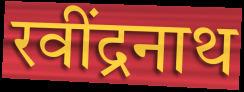
रवींद्रनाथ